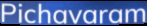
Pichavaram